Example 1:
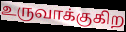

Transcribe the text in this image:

உருவாக்குகிற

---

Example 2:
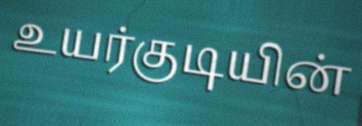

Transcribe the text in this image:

உயர்குடியின்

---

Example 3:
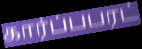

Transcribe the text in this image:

கார்ப்பபரட்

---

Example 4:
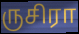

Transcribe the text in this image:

ருசிரா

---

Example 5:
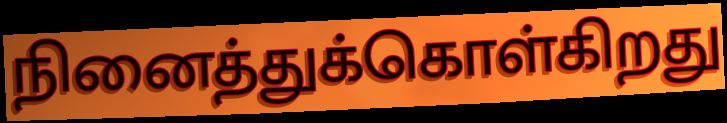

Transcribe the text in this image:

நினைத்துக்கொள்கிறது